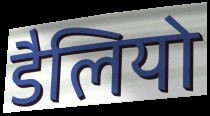
डैलियो